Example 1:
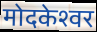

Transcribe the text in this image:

मोदकेश्वर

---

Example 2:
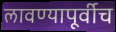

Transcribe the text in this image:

लावण्यापूर्वीच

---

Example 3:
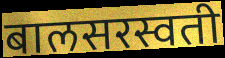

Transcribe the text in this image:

बालसरस्वती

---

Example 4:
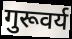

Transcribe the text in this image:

गुरूवर्य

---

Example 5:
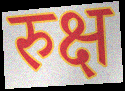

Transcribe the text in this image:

रुक्ष